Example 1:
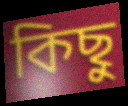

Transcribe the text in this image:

কিছু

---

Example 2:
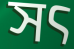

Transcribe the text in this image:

সৎ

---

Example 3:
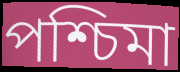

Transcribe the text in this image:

পশ্চিমা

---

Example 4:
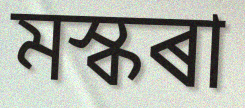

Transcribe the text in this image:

মস্কৰা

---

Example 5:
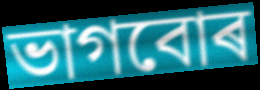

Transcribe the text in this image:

ভাগবোৰ